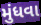
મુંધવા